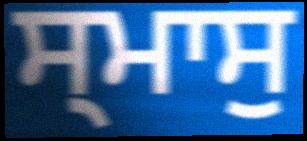
ਸ੍ਮਾਸੁ